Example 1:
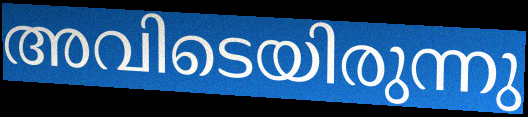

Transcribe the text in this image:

അവിടെയിരുന്നു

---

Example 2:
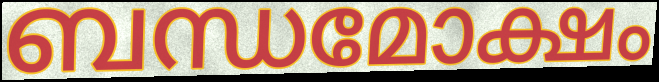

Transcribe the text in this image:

ബന്ധമോക്ഷം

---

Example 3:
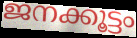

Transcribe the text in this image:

ജനക്കൂട്ടം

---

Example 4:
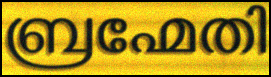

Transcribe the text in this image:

ബ്രഹ്മേതി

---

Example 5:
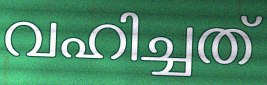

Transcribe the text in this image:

വഹിച്ചത്